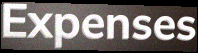
Expenses